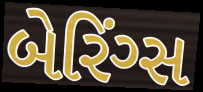
બેરિંગ્સ